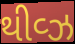
થીવ્ઝ